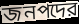
জনপদের